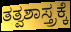
ತತ್ವಶಾಸ್ತ್ರಕ್ಕೆ